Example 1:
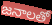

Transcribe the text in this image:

జనాలతో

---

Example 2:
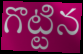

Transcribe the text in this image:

గొట్టిన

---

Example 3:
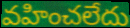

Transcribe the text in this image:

వహించలేదు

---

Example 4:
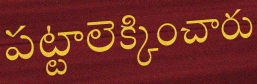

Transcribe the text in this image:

పట్టాలెక్కించారు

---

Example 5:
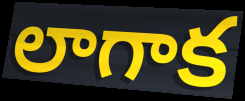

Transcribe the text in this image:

లాగాక